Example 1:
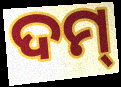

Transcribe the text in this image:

ଦମ୍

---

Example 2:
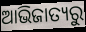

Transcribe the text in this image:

ଆଭିଜାତ୍ୟରୁ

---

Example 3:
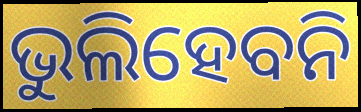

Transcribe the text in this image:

ଭୁଲିହେବନି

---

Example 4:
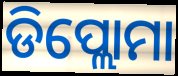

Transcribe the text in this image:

ଡିପ୍ଲୋମା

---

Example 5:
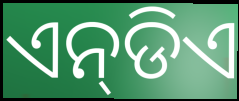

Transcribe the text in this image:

ଏନ୍‌ଡିଏ